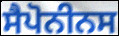
ਸੈਪੋਨੀਨਸ